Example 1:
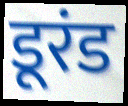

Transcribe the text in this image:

डूरंड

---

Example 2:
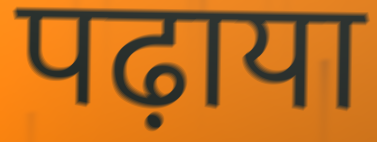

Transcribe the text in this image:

पढ़ाया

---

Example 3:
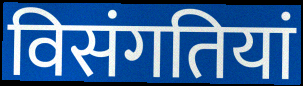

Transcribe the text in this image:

विसंगतियां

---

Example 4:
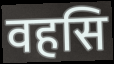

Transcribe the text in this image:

वहसि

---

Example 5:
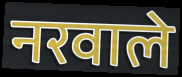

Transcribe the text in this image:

नरवाले